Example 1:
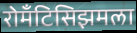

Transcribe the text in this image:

रोमँटिसिझमला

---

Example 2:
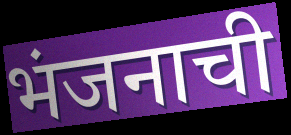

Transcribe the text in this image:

भंजनाची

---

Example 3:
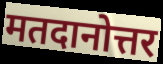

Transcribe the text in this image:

मतदानोत्तर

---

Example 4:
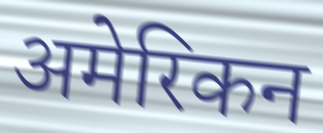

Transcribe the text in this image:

अमेरिकन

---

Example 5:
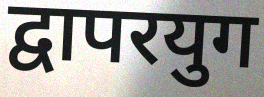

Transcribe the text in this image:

द्वापरयुग